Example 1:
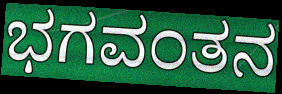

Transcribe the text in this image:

ಭಗವಂತನ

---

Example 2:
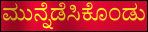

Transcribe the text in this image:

ಮುನ್ನೆಡೆಸಿಕೊಂಡು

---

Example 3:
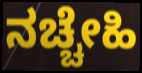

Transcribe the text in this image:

ನಚ್ಚೇಹಿ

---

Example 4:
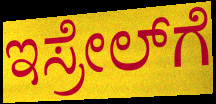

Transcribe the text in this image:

ಇಸ್ರೇಲ್‍ಗೆ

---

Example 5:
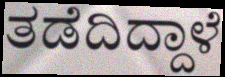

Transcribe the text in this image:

ತಡೆದಿದ್ದಾಳೆ